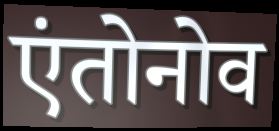
एंतोनोव